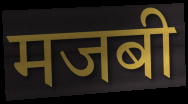
मजबी